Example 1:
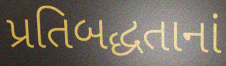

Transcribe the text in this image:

પ્રતિબદ્ધતાનાં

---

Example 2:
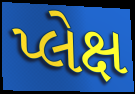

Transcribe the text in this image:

પ્લેક્ષ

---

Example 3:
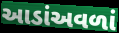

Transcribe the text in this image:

આડાંઅવળાં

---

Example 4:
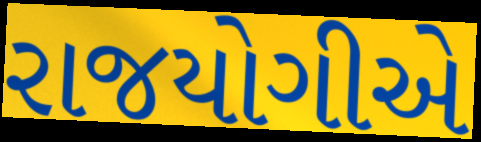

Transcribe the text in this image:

રાજયોગીએ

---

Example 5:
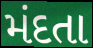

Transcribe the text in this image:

મંદતા